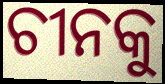
ଚୀନକୁ